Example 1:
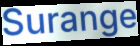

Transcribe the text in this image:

Surange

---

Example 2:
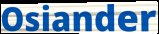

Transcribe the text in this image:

Osiander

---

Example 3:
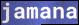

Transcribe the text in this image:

jamana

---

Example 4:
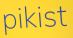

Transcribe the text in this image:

pikist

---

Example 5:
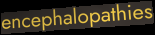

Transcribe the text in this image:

encephalopathies